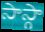
సాస్గా